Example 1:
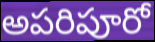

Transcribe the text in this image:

అపరిపూరో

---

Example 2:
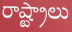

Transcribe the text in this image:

రాష్ట్రాలు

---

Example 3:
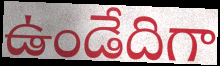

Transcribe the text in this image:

ఉండేదిగా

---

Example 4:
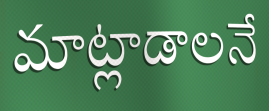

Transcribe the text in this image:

మాట్లాడాలనే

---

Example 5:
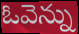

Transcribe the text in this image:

ఓవెన్ను